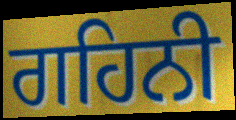
ਗਹਿਨੀ